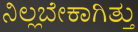
ನಿಲ್ಲಬೇಕಾಗಿತ್ತು